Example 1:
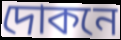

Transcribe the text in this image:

দোকনে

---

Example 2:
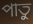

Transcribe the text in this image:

পাতু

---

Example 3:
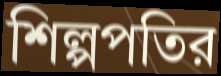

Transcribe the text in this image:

শিল্পপতির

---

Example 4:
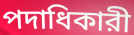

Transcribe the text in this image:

পদাধিকারী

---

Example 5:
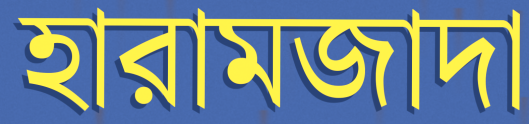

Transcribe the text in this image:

হারামজাদা